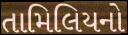
તામિલિયનો